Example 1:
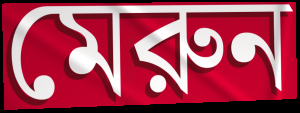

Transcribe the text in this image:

মেরুন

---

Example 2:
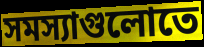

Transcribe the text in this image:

সমস্যাগুলোতে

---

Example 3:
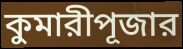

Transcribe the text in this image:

কুমারীপূজার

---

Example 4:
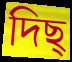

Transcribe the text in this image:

দিছ্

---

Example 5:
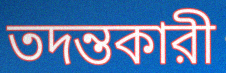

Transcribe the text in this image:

তদন্তকারী